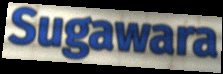
Sugawara